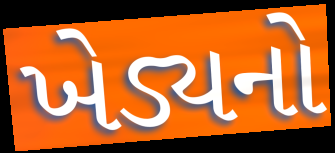
ખેડ્યનો